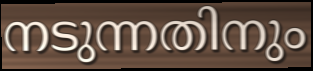
നടുന്നതിനും